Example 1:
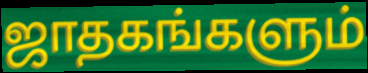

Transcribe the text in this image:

ஜாதகங்களும்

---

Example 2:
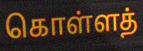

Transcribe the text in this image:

கொள்ளத்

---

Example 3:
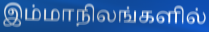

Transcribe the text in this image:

இம்மாநிலங்களில்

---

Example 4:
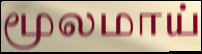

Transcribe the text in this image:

மூலமாய்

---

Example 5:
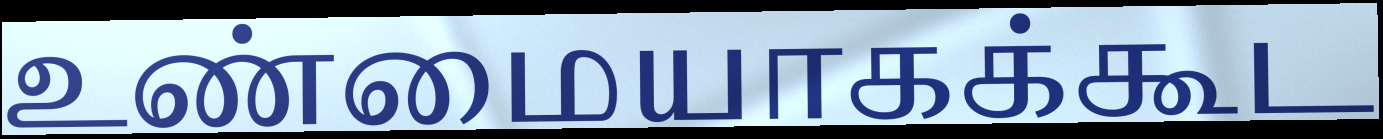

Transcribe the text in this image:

உண்மையாகக்கூட